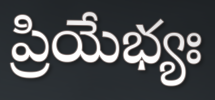
ప్రియేభ్యః